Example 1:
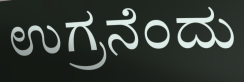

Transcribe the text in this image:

ಉಗ್ರನೆಂದು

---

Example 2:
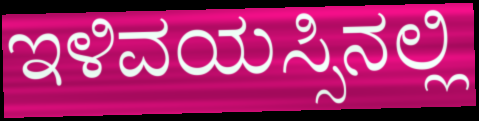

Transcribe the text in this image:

ಇಳಿವಯಸ್ಸಿನಲ್ಲಿ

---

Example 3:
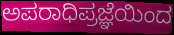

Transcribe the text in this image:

ಅಪರಾಧಿಪ್ರಜ್ಞೆಯಿಂದ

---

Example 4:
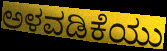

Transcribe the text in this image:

ಅಳವಡಿಕೆಯು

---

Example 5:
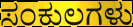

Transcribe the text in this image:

ಸಂಕುಲಗಳು